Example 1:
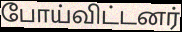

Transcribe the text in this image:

போய்விட்டனர்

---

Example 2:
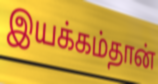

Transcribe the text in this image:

இயக்கம்தான்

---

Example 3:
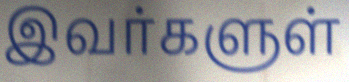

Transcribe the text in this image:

இவர்களுள்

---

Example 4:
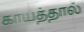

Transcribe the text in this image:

காயத்தால்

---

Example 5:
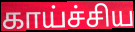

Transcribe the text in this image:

காய்ச்சிய